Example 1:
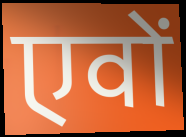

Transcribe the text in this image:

एवों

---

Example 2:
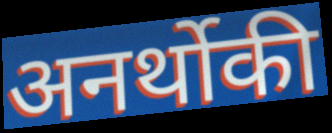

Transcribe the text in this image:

अनर्थोकी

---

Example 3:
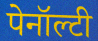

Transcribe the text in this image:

पेनॉल्टी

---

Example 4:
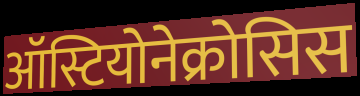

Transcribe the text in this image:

ऑस्टियोनेक्रोसिस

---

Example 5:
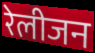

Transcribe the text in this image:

रेलीजन